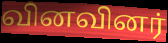
வினவினர்